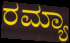
ರಮ್ಯಾ